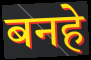
बनहे